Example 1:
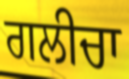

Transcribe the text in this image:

ਗਲੀਚਾ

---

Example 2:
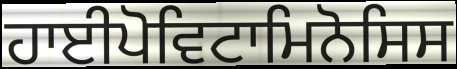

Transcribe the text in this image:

ਹਾਈਪੋਵਿਟਾਮਿਨੋਸਿਸ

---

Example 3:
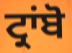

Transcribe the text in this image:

ਟ੍ਰਾਂਬੋ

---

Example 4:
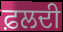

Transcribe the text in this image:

ਫ਼ਲਦੀ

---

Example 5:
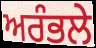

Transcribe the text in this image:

ਅਰੰਭਲੇ